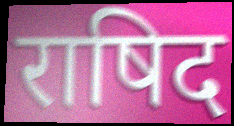
राषिद